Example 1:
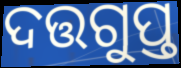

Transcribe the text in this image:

ଦତ୍ତଗୁପ୍ତ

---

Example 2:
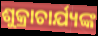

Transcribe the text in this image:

ଶୁକ୍ରାଚାର୍ଯ୍ୟଙ୍କ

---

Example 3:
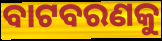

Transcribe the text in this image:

ବାଟବରଣକୁ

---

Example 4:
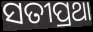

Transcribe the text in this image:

ସତୀପ୍ରଥା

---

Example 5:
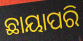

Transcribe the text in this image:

ଛାୟାପରି